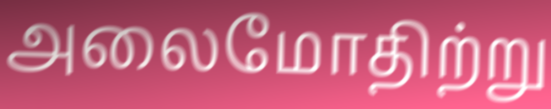
அலைமோதிற்று